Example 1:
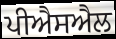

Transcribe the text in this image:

ਪੀਐਸਐਲ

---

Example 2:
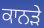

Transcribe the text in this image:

ਕਾਨੜੇ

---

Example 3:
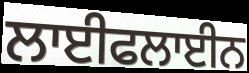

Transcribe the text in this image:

ਲਾਈਫਲਾਈਨ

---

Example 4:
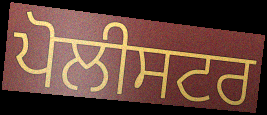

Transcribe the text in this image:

ਪੋਲੀਸਟਰ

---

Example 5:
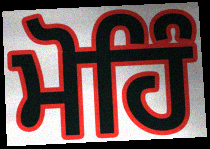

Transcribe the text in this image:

ਮੋਹਿੰ